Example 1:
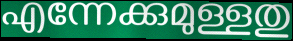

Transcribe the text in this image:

എന്നേക്കുമുള്ളതു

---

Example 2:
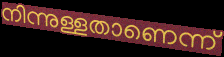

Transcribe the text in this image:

നിന്നുള്ളതാണെന്ന്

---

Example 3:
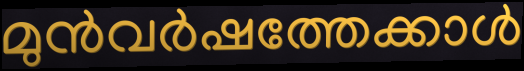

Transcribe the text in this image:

മുൻവർഷത്തേക്കാൾ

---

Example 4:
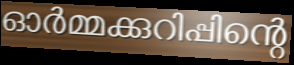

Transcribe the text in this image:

ഓർമ്മക്കുറിപ്പിന്റെ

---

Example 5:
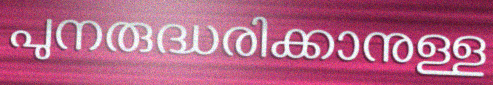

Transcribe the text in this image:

പുനരുദ്ധരിക്കാനുള്ള